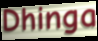
Dhinga